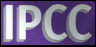
IPCC